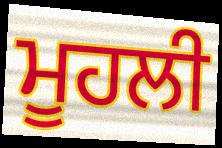
ਮੂਹਲੀ